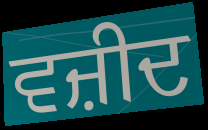
ਵਜ਼ੀਦ